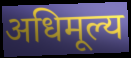
अधिमूल्य